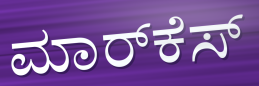
ಮಾರ್‌ಕೆಸ್